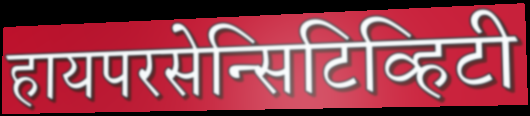
हायपरसेन्सिटिव्हिटी